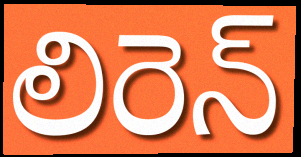
లిరెన్